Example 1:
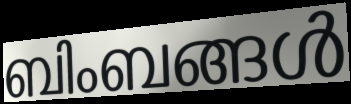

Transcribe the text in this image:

ബിംബങ്ങൾ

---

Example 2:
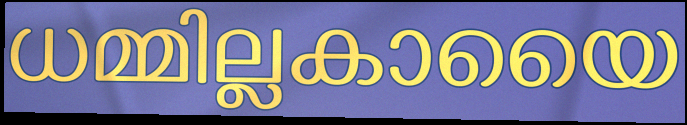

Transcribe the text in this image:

ധമ്മില്ലകായൈ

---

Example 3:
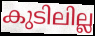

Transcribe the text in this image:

കുടിലില്ല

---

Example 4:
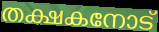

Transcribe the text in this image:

തക്ഷകനോട്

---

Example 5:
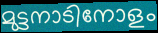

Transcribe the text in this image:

മുട്ടനാടിനോളം